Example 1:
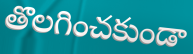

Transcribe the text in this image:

తొలగించకుండా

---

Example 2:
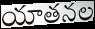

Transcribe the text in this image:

యాతనల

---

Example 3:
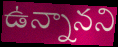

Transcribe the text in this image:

ఉన్నానని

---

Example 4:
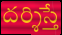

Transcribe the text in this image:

దర్శిస్తే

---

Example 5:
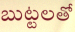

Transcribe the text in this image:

బుట్టలతో